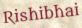
Rishibhai